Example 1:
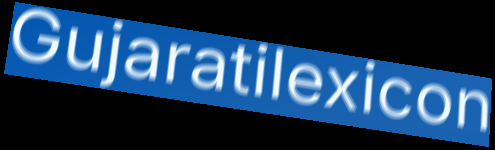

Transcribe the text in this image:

Gujaratilexicon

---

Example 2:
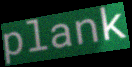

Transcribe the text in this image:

plank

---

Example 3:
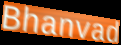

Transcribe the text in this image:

Bhanvad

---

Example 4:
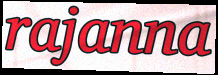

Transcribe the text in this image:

rajanna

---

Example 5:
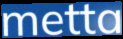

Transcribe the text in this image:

metta